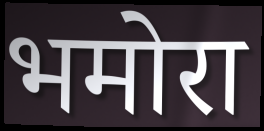
भमोरा